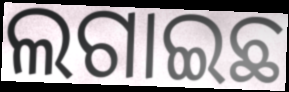
ଲଗାଇଛ